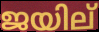
ജയില്